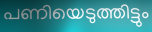
പണിയെടുത്തിട്ടും